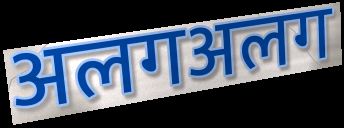
अलगअलग